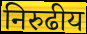
निरुढीय